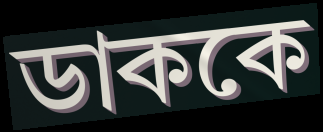
ডাককে